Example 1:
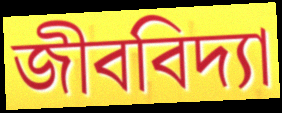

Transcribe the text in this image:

জীববিদ্যা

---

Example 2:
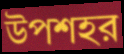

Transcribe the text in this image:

উপশহর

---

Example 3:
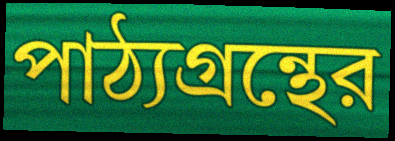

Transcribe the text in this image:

পাঠ্যগ্রন্থের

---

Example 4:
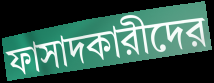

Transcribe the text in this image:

ফাসাদকারীদের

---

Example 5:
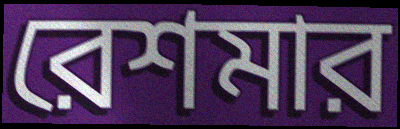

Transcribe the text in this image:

রেশমার